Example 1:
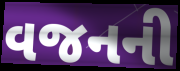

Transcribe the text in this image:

વજનની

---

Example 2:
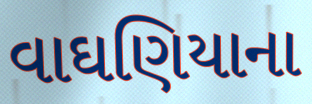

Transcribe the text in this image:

વાઘણિયાના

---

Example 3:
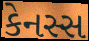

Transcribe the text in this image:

કેનસ્સ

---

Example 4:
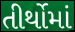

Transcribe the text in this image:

તીર્થોમાં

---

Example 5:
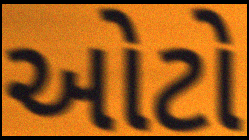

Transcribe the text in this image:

ઓટો